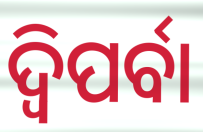
ଦ୍ଵିପର୍ବା